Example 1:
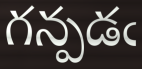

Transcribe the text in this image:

గన్పడఁ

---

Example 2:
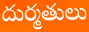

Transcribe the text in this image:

దుర్మతులు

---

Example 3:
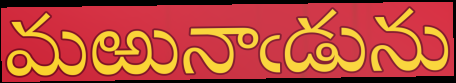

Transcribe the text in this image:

మఱునాఁడును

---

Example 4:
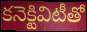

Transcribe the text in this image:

కనెక్టివిటీతో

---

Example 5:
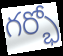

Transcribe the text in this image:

గర్భో